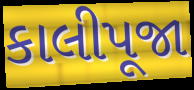
કાલીપૂજા